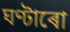
ঘণ্টাৰো